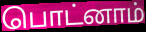
பொட்னாம்